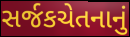
સર્જકચેતનાનું